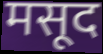
मसूद